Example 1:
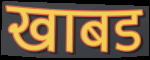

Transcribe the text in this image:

खाबड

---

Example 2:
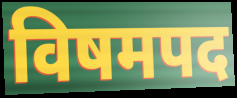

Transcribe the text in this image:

विषमपद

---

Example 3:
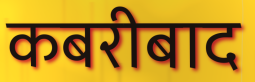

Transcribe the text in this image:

कबरीबाद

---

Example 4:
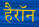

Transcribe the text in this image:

हैरॉन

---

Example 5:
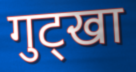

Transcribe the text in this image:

गुट्खा